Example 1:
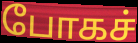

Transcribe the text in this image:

போகச்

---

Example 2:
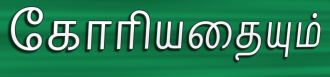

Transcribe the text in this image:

கோரியதையும்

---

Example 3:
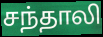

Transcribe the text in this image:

சந்தாலி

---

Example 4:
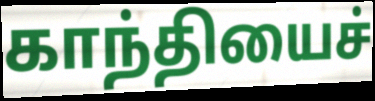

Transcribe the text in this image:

காந்தியைச்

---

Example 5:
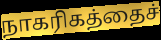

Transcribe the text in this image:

நாகரிகத்தைச்